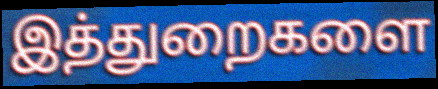
இத்துறைகளை